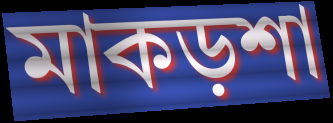
মাকড়শা